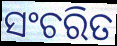
ସଂଚରିତ